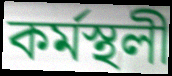
কৰ্মস্থলী